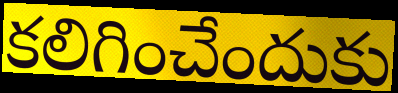
కలిగించేందుకు